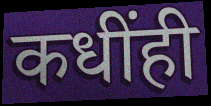
कधींही